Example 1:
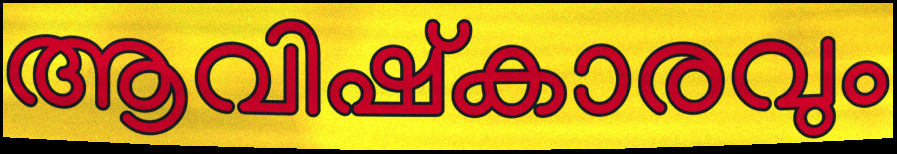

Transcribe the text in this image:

ആവിഷ്കാരവും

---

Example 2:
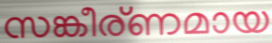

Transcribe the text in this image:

സങ്കീര്ണമായ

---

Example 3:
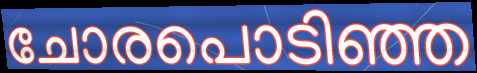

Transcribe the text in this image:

ചോരപൊടിഞ്ഞ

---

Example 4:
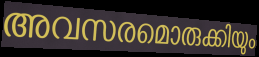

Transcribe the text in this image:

അവസരമൊരുക്കിയും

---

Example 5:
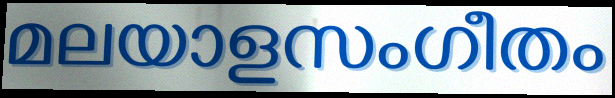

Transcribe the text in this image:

മലയാളസംഗീതം